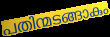
പതിന്മടങ്ങാകും